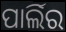
ପାର୍ଲିର